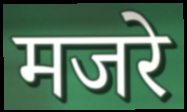
मजरे